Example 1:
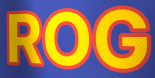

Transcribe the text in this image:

ROG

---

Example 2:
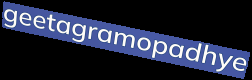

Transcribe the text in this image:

geetagramopadhye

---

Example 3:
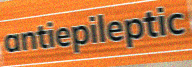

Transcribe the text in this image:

antiepileptic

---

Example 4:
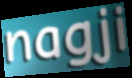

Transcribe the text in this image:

nagji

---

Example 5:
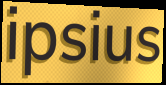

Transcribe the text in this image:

ipsius